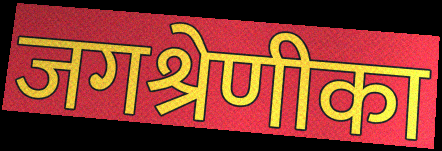
जगश्रेणीका